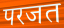
परजत